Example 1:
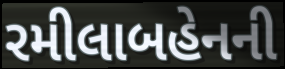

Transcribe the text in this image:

રમીલાબહેનની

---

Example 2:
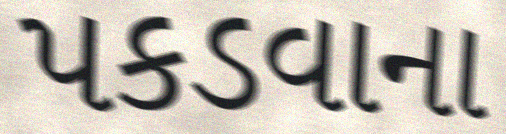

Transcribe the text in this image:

પકડવાના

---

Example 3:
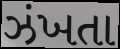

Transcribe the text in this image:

ઝંખતા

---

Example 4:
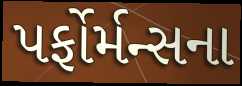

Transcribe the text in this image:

પર્ફોર્મન્સના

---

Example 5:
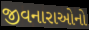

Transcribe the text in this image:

જીવનારાઓનો